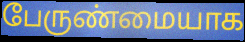
பேருண்மையாக